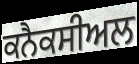
ਕਨੈਕਸੀਅਲ